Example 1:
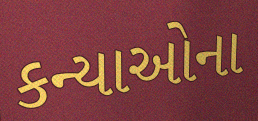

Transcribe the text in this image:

કન્યાઓના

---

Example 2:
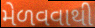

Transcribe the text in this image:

મેળવવાથી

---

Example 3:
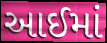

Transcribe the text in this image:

આઈમાં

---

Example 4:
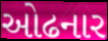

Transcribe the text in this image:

ઓઢનાર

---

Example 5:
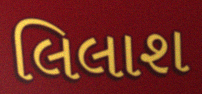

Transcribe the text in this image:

લિલાશ